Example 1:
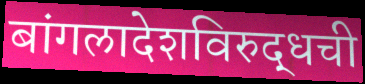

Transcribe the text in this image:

बांगलादेशविरुद्धची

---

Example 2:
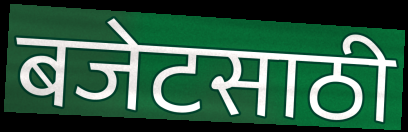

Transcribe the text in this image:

बजेटसाठी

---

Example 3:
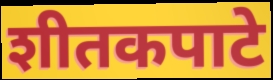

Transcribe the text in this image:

शीतकपाटे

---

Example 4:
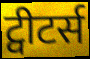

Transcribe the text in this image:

ट्वीटर्स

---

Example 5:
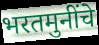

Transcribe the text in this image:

भरतमुनींचे